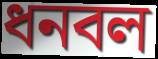
ধনবল